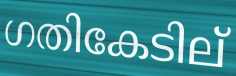
ഗതികേടില്